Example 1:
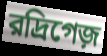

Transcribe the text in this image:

রদ্রিগেজ়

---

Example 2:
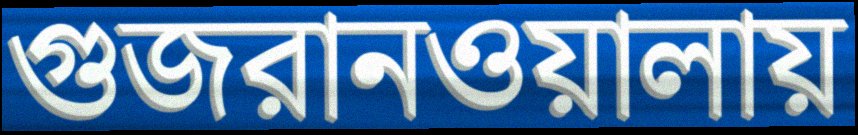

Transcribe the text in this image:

গুজরানওয়ালায়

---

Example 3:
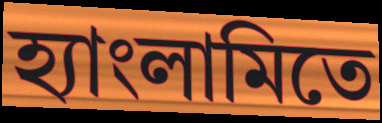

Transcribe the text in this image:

হ্যাংলামিতে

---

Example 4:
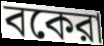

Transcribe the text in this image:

বকেরা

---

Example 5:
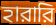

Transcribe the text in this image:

হারারি